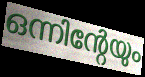
ഒന്നിന്റേയും